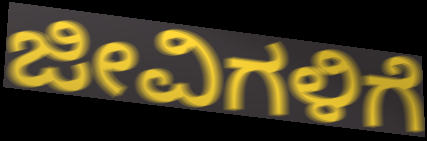
ಜೀವಿಗಳಿಗೆ